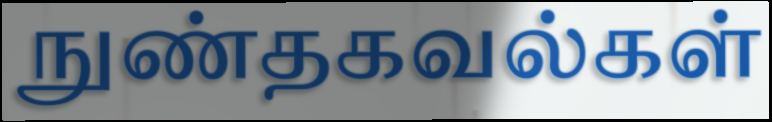
நுண்தகவல்கள்